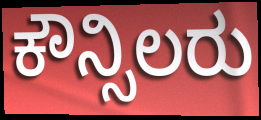
ಕೌನ್ಸಿಲರು